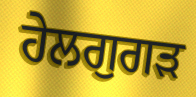
ਹੇਲਗੁਗੜ